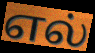
எல்